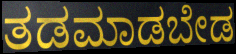
ತಡಮಾಡಬೇಡ